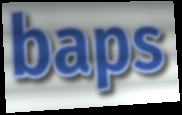
baps